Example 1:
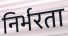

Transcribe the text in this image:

निर्भरता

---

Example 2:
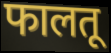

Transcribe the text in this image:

फालतू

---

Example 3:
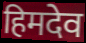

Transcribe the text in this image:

हिमदेव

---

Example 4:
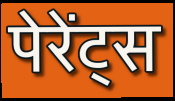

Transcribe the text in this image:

पेरेंट्स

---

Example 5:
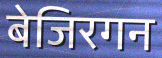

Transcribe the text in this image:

बेजिरगन